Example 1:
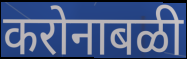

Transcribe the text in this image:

करोनाबळी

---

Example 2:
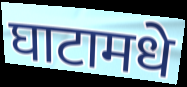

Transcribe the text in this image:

घाटामधे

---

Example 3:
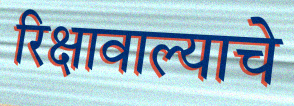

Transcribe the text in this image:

रिक्षावाल्याचे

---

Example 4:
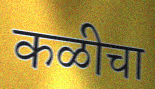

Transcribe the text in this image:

कळीचा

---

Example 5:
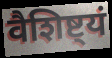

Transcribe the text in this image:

वैशिष्ट्यं